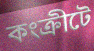
কংক্রীটে